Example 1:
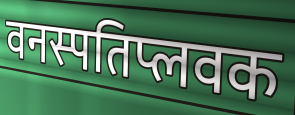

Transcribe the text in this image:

वनस्पतिप्लवक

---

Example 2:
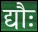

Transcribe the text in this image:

द्यौः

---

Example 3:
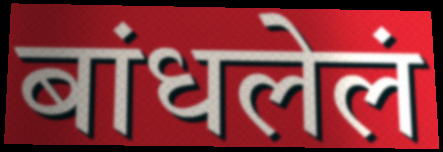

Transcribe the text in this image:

बांधलेलं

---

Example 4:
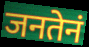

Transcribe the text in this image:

जनतेनं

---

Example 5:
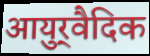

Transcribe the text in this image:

आयुर्वैदिक